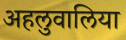
अहलुवालिया